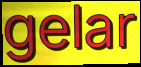
gelar